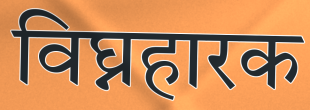
विघ्नहारक